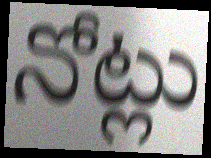
నోట్లు